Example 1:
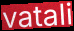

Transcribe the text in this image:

vatali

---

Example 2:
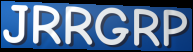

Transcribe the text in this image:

JRRGRP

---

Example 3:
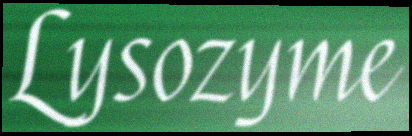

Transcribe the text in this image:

Lysozyme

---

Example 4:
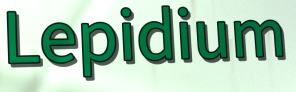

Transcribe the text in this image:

Lepidium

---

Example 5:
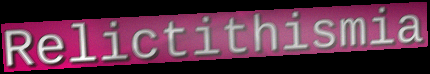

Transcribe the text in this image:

Relictithismia